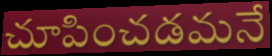
చూపించడమనే